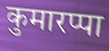
कुमारप्पा